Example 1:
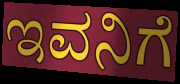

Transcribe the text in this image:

ಇವನಿಗೆ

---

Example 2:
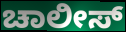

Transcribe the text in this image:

ಚಾಲೀಸ್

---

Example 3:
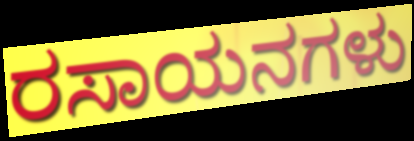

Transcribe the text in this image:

ರಸಾಯನಗಳು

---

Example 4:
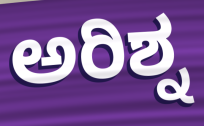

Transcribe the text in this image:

ಅರಿಶ್ನ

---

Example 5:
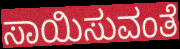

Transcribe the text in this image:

ಸಾಯಿಸುವಂತೆ